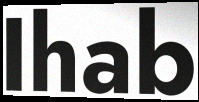
Ihab